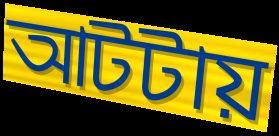
আটটায়